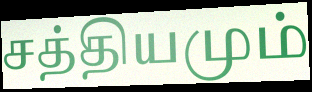
சத்தியமும்